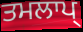
ਤਮਲਾਪ੍